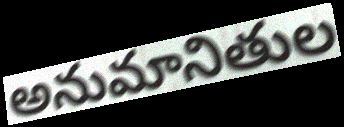
అనుమానితుల